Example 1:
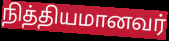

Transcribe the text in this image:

நித்தியமானவர்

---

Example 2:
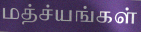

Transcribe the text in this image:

மத்ச்யங்கள்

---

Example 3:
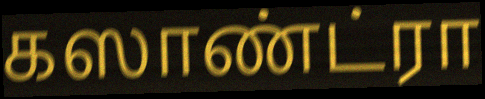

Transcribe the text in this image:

கஸாண்ட்ரா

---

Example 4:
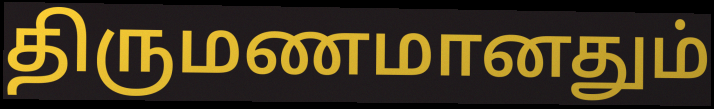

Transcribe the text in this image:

திருமணமானதும்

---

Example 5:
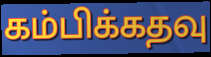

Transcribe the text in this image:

கம்பிக்கதவு